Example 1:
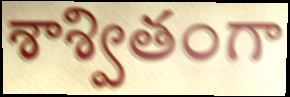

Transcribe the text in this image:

శాశ్వితంగా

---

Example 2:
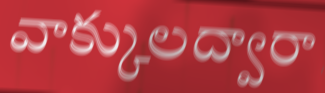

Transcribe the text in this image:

వాక్కులద్వారా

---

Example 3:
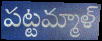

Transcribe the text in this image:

పట్టమ్మాళ్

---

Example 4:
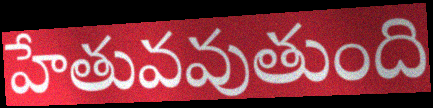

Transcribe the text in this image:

హేతువవుతుంది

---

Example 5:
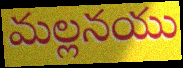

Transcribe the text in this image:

మల్లనయు